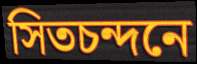
সিতচন্দনে